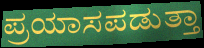
ಪ್ರಯಾಸಪಡುತ್ತಾ